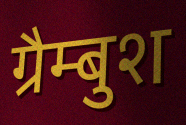
ग्रैम्बुश